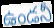
ఉండనీ